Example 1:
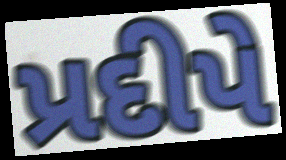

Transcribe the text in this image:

પ્રદીપે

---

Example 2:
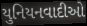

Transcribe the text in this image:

યુનિયનવાદીઓ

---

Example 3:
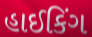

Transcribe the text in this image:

હાઈકિંગ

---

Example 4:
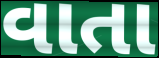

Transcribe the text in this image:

વાતા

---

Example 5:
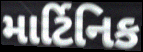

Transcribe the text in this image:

માર્ટિનિક